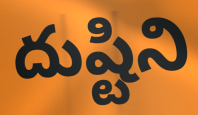
దుష్టిని